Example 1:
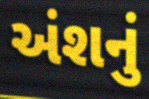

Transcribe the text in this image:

અંશનું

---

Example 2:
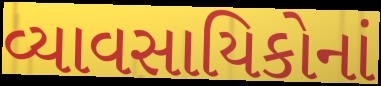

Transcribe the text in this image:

વ્યાવસાયિકોનાં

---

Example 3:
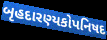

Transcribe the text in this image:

બૃહદારણ્યકોપનિષદ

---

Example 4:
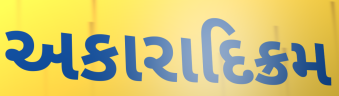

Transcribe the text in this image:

અકારાદિક્રમ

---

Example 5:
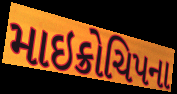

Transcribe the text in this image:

માઇક્રોચિપના